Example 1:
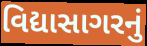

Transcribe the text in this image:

વિદ્યાસાગરનું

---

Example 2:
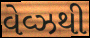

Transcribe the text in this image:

વેવ્ઝથી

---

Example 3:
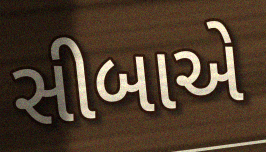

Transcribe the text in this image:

સીબાએ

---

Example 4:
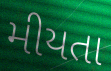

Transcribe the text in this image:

મીયતા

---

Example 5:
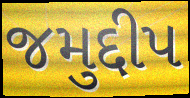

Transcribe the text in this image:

જમુદ્દીપ